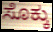
ಸೊಕ್ಕು